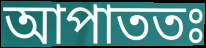
আপাততঃ